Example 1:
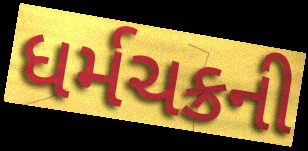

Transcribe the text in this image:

ધર્મચક્રની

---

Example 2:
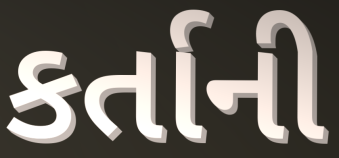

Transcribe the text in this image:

કર્તાની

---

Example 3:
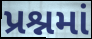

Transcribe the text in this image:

પ્રશ્નમાં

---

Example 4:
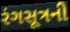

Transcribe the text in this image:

રંગસૂત્રની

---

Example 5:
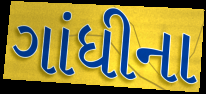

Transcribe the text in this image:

ગાંધીના